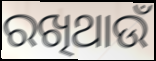
ରଖିଥାଉଁ